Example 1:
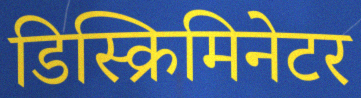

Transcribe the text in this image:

डिस्क्रिमिनेटर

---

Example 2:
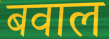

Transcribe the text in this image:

बवाल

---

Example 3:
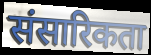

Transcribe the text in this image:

संसारिकता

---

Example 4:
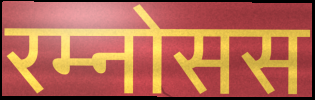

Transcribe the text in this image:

रम्नोसस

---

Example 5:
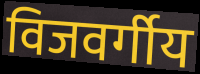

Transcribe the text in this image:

विजवर्गीय